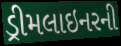
ડ્રીમલાઇનરની